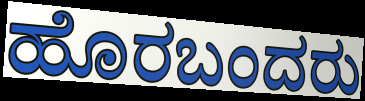
ಹೊರಬಂದರು